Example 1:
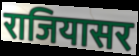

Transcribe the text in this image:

राजियासर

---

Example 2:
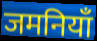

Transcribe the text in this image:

जमनियाँ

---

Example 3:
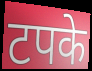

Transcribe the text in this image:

टपके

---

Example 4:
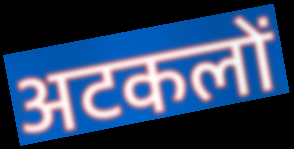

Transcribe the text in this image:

अटकलों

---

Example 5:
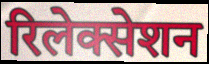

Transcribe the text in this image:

रिलेक्सेशन